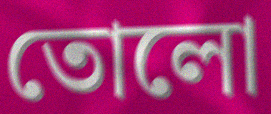
তোলো